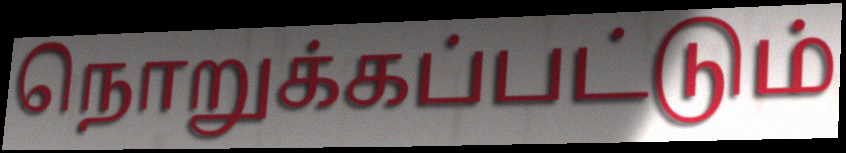
நொறுக்கப்பட்டும்